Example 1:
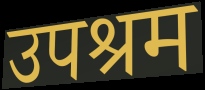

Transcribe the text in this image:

उपश्रम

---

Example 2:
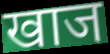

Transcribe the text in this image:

खाज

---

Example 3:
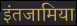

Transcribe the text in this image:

इंतजामिया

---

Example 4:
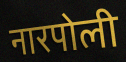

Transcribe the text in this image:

नारपोली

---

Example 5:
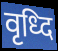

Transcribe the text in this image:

वृध्दि